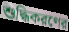
শুদ্ধিকরণের